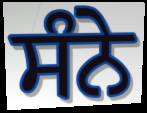
ਸੰਨੇ